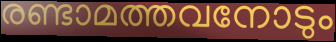
രണ്ടാമത്തവനോടും